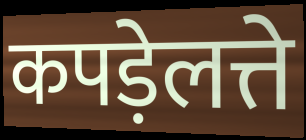
कपड़ेलत्ते